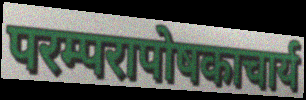
परम्परापोषकाचार्य